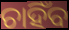
ଚାହିଁବ